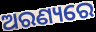
ଅରଣ୍ୟରେ